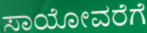
ಸಾಯೋವರೆಗೆ